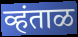
व्हंताळ